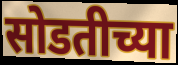
सोडतीच्या